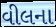
વીલના